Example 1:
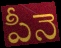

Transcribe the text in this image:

పీనె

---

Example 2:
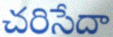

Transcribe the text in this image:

చరిసేదా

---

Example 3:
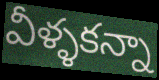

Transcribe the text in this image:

వీళ్ళకన్నా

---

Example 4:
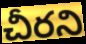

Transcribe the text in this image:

చీరని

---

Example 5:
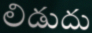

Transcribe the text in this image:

లిడుదు